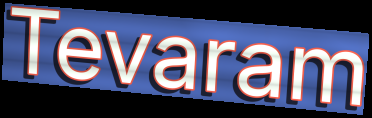
Tevaram